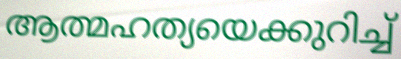
ആത്മഹത്യയെക്കുറിച്ച്